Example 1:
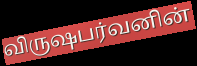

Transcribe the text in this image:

விருஷபர்வனின்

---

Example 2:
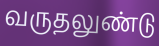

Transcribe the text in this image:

வருதலுண்டு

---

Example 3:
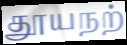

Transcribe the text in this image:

தூயநற்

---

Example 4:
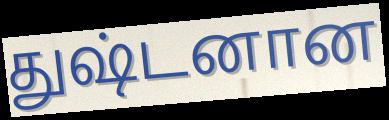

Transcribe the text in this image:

துஷ்டனான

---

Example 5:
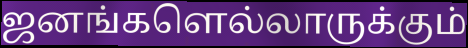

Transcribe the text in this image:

ஜனங்களெல்லாருக்கும்